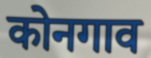
कोनगाव